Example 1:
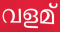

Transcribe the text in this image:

വളമ്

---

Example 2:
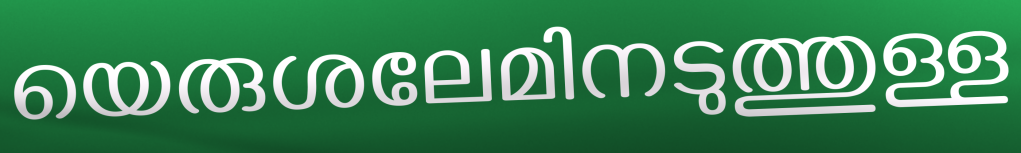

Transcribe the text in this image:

യെരുശലേമിനടുത്തുള്ള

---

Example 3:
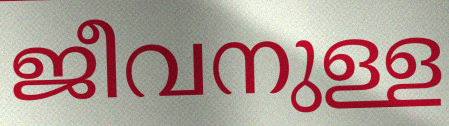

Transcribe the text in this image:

ജീവനുള്ള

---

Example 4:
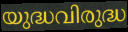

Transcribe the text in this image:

യുദ്ധവിരുദ്ധ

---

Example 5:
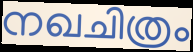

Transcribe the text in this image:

നഖചിത്രം